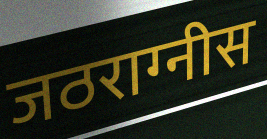
जठराग्नीस